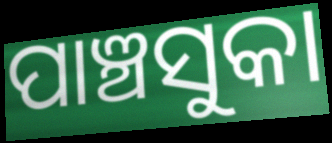
ପାଞ୍ଚସୁକା